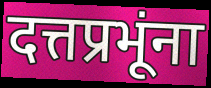
दत्तप्रभूंना